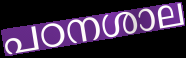
പഠനശാല